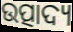
ଉତ୍ପାଦ୍ୟ